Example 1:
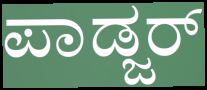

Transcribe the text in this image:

ಪಾಡ್ಜರ್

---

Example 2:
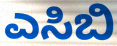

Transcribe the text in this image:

ಎಸಿಬಿ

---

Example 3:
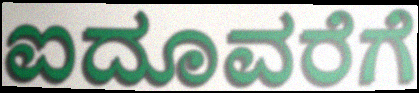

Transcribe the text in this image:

ಐದೂವರೆಗೆ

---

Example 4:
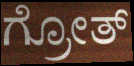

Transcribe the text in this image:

ಗ್ರೋತ್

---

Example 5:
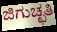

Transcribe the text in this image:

ಜಿಗುಚ್ಛತಿ